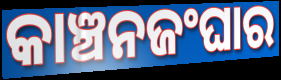
କାଞ୍ଚନଜଂଘାର